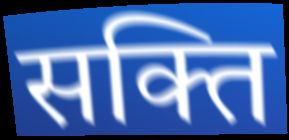
सक्ति